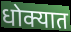
धोक्यात